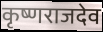
कृष्णराजदेव